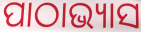
ପାଠାଭ୍ୟାସ